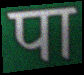
पा